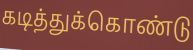
கடித்துக்கொண்டு